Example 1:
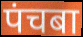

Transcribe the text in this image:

पंचबा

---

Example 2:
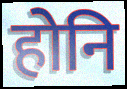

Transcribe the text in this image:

होनि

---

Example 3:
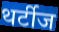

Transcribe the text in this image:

थर्टीज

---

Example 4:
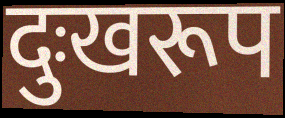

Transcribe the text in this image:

दुःखरूप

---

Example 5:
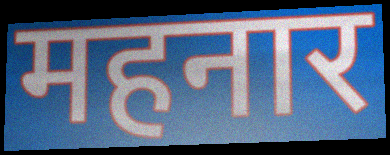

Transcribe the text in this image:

महनार